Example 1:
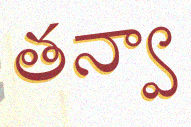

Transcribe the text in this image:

తన్వా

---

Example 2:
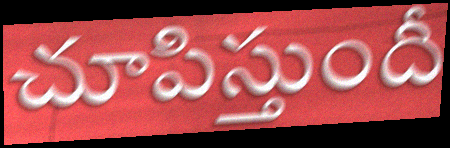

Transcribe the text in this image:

చూపిస్తుందీ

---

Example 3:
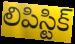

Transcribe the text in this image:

లిపిస్టిక్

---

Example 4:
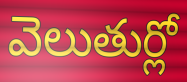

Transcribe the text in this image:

వెలుతుర్లో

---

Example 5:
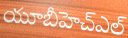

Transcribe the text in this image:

యూబీహెచ్ఎల్